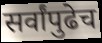
सर्वांपुढेच